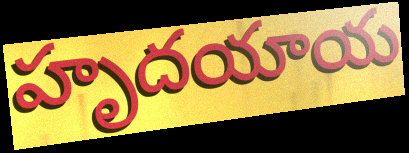
హృదయాయ